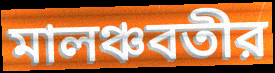
মালঞ্চবতীর